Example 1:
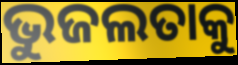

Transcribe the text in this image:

ଭୁଜଲତାକୁ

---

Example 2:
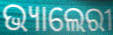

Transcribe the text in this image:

ଭ୍ୟାଲେରୀ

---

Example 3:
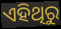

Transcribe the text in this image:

ଏହିଥିରୁ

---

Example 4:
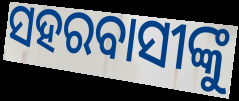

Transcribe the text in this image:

ସହରବାସୀଙ୍କୁ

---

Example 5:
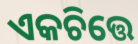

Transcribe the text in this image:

ଏକଚିତ୍ତେ